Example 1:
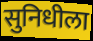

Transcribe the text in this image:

सुनिधीला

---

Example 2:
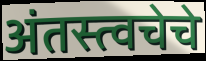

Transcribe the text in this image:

अंतस्त्वचेचे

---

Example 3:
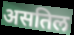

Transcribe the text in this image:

असतिल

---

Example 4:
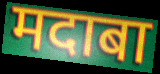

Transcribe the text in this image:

मदाबा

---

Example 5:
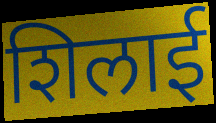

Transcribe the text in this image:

शिलाई